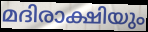
മദിരാക്ഷിയും